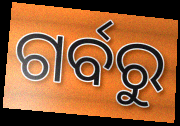
ଗର୍ବରୁ